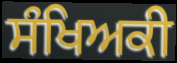
ਸੰਖਿਅਕੀ